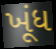
ખૂંધ